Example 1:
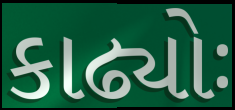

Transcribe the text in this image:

કાઢ્યોઃ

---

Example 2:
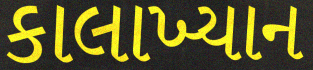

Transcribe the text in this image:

કાલાખ્યાન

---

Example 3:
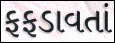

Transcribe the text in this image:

ફફડાવતાં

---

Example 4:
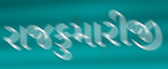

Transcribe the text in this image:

રાજકુમારીજી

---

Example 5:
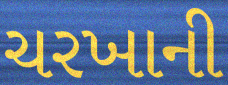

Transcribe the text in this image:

ચરખાની